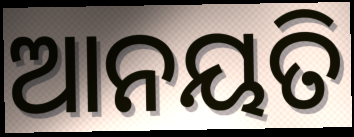
ଆନୟତି